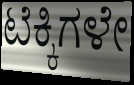
ಟೆಕ್ಕಿಗಳೇ